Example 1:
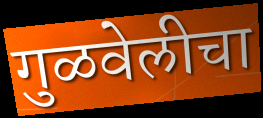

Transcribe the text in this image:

गुळवेलीचा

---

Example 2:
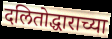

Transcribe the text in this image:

दलितोद्धाराच्या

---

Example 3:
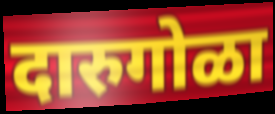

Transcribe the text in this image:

दारुगोळा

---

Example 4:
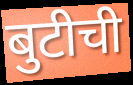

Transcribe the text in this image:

बुटीची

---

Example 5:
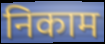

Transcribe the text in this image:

निकाम